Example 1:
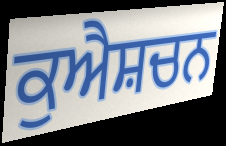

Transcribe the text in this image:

ਕੁਐਸ਼ਚਨ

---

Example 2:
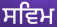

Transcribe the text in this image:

ਸਵਿਮ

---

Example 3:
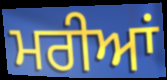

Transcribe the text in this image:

ਮਰੀਆਂ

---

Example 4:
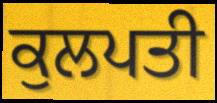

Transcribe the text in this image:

ਕੁਲਪਤੀ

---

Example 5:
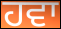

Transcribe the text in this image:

ਹਵਾ